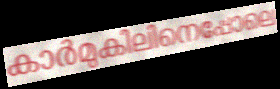
കാർമുകിലിനെപ്പോലെ